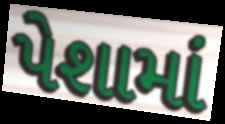
પેશામાં